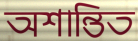
অশান্তিত